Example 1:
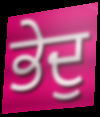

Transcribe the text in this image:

ਭੇਦੁ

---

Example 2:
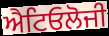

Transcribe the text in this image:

ਐਟਿਓਲੋਜੀ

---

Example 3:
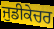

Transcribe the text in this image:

ਜੁਡੀਕੇਚਰ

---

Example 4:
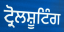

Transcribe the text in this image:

ਟ੍ਰੋਲਸ਼ੂਟਿੰਗ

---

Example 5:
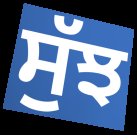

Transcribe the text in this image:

ਸੁੱਝ